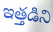
ఇత్తడిని